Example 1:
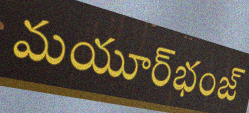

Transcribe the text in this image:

మయూర్‌భంజ్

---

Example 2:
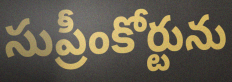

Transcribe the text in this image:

సుప్రీంకోర్టును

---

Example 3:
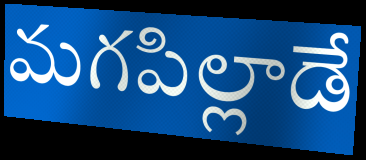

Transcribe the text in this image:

మగపిల్లాడే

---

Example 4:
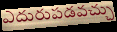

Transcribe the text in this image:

ఎదురుపడవచ్చు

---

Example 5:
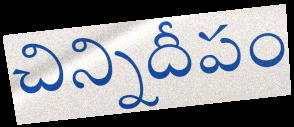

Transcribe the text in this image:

చిన్నిదీపం